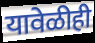
यावेळीही